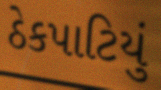
ઠેકપાટિયું